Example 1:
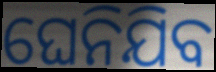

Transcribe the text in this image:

ଘେନିଯିବ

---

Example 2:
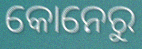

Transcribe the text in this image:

କୋନେରୁ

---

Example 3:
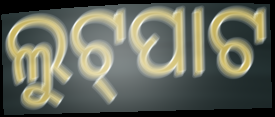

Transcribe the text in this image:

ଲୁଟ୍‍ପାଟ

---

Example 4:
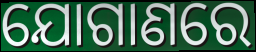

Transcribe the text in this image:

ଯୋଗାଣରେ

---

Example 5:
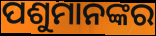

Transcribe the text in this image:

ପଶୁମାନଙ୍କର